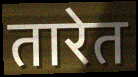
तारेत